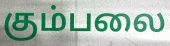
கும்பலை